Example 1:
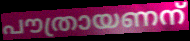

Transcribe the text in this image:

പൗത്രായണന്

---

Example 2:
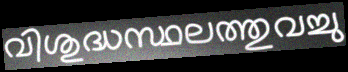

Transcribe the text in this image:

വിശുദ്ധസ്ഥലത്തുവച്ചു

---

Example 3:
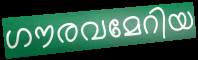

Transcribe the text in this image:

ഗൗരവമേറിയ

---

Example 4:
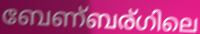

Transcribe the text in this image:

ബേണ്ബര്ഗിലെ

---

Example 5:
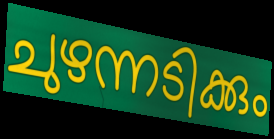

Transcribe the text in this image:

ചുഴന്നടിക്കും